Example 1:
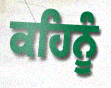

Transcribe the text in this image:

ਕਹਿਨੂੰ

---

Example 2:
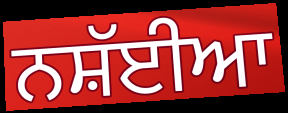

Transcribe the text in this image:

ਨਸ਼ੱਈਆ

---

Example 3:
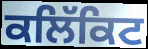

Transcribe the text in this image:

ਕਲਿੱਕਿਟ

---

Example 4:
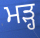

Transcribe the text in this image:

ਮੜ੍ਹ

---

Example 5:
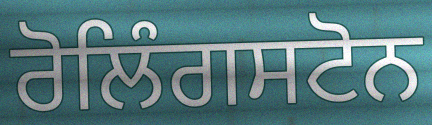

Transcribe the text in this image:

ਰੋਲਿੰਗਸਟੋਨ